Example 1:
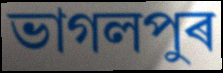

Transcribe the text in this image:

ভাগলপুৰ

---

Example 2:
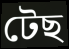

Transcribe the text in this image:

টেছ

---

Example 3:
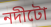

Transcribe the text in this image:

নদীটো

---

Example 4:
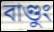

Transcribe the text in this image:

বাণ্ডুং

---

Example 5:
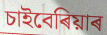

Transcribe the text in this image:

চাইবেৰিয়াৰ